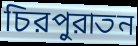
চিরপুরাতন